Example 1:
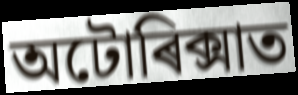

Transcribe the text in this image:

অটোৰিক্সাত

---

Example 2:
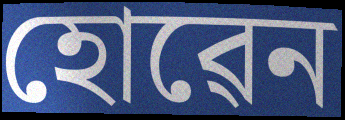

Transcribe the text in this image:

হোৱেন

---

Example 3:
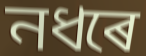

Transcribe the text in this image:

নধৰে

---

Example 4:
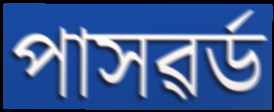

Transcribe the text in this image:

পাসৱৰ্ড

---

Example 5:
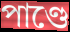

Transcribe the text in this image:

পাণ্ডে